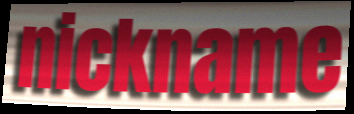
nickname